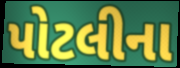
પોટલીના